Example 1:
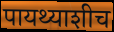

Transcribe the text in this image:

पायथ्याशीच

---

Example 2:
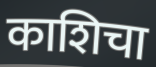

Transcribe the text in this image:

काशिचा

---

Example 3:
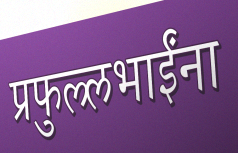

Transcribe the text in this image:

प्रफुल्लभाईंना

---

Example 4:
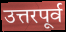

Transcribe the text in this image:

उत्तरपूर्व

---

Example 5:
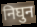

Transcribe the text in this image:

निघुन